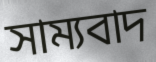
সাম্যবাদ